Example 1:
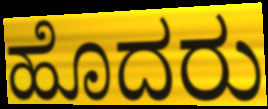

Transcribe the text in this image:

ಹೊದರು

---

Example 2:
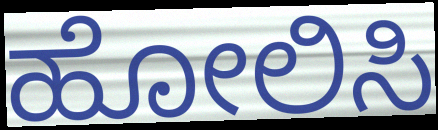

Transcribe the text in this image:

ಹೋಲಿಸಿ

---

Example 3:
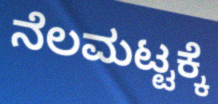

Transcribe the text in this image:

ನೆಲಮಟ್ಟಕ್ಕೆ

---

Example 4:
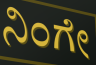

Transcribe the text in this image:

ನಿಂಗೇ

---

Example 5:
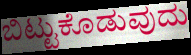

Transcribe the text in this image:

ಬಿಟ್ಟುಕೊಡುವುದು